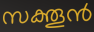
സക്തൂൻ